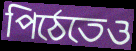
পিঠেতেও